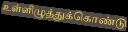
உள்ளிழுத்துக்கொண்டு